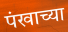
पंखाच्या